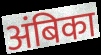
अंबिका